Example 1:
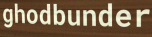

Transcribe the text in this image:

ghodbunder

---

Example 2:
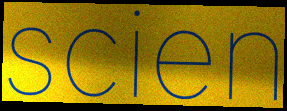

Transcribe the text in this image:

scien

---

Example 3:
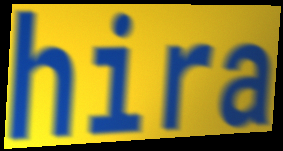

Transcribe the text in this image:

hira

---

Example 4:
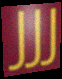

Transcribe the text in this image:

JJJ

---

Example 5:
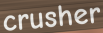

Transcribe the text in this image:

crusher